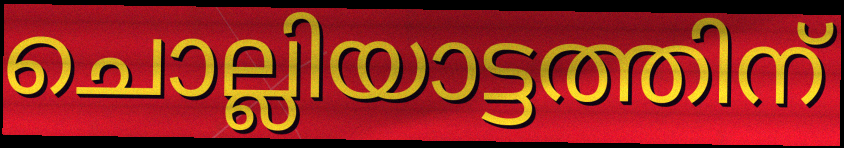
ചൊല്ലിയാട്ടത്തിന്